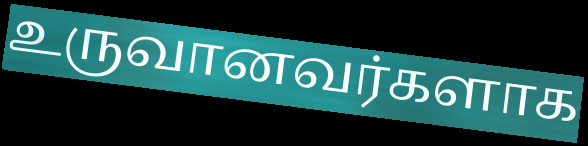
உருவானவர்களாக